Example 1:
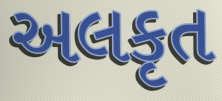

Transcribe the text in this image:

અલકૃત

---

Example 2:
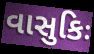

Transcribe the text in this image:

વાસુકિઃ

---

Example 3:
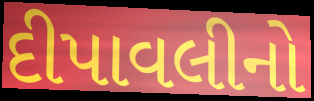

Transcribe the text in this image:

દીપાવલીનો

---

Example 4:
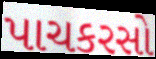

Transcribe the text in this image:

પાચકરસો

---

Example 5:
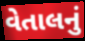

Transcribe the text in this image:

વેતાલનું